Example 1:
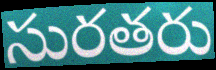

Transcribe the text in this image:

సురతరు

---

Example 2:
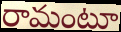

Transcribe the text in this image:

రామంటూ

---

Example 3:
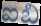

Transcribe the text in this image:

ఐబి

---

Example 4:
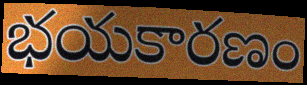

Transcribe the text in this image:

భయకారణం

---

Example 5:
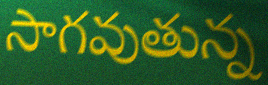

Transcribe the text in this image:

సాగవుతున్న